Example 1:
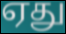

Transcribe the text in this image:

ஏது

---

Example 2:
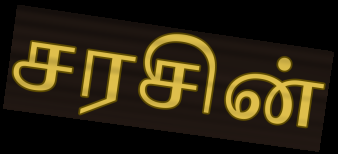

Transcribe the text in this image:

சரசின்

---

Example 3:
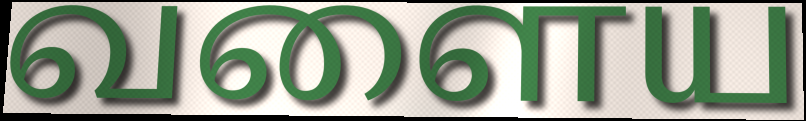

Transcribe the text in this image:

வளைய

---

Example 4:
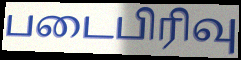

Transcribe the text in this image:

படைபிரிவு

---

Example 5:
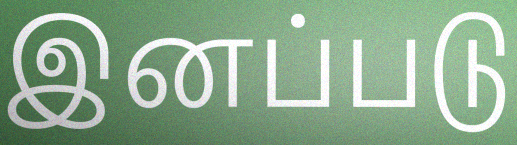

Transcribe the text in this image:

இனப்படு